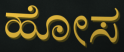
ಹೋಸ